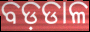
ବଡ଼ଡାଳ